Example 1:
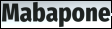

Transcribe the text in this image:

Mabapone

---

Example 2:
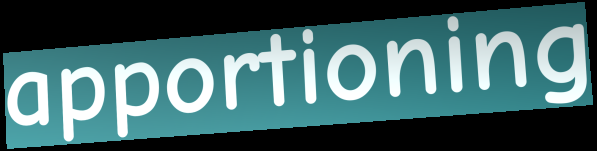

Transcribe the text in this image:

apportioning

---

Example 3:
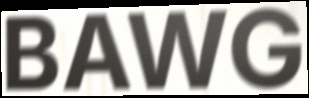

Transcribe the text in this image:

BAWG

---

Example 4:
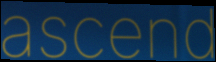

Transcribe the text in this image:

ascend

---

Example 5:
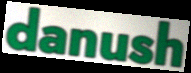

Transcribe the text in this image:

danush